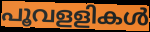
പൂവളളികൾ